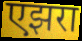
एझरा